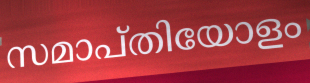
സമാപ്തിയോളം